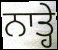
ਨਾਤ੍ਹੇ